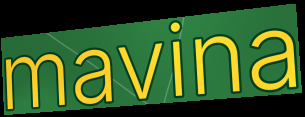
mavina